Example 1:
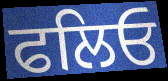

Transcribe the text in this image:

ਫਲਿਓ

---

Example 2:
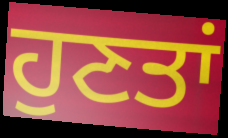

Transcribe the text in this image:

ਹੁਣਤਾਂ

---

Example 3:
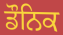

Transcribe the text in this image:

ਡੌਨਿਕ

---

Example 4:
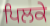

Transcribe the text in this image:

ਪਿਲਕੇ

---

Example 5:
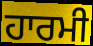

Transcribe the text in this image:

ਹਾਰਮੀ